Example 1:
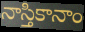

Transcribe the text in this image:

నాస్తికానాం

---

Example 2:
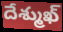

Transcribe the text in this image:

దేశ్ముఖ్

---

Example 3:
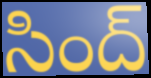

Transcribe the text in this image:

సింద్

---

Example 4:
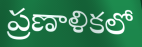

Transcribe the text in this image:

ప్రణాళికలో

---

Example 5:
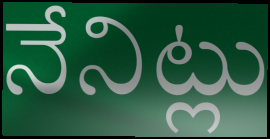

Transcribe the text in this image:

నేనిట్లు